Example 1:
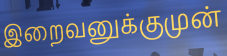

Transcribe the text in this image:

இறைவனுக்குமுன்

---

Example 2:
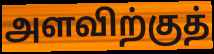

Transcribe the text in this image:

அளவிற்குத்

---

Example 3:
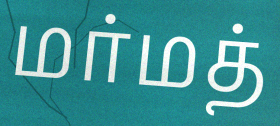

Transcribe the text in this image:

மர்மத்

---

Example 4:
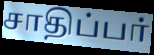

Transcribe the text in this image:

சாதிப்பர்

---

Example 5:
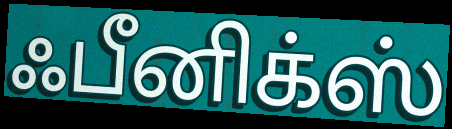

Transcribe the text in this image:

ஃபீனிக்ஸ்